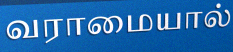
வராமையால்